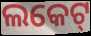
ଲକେଟ୍